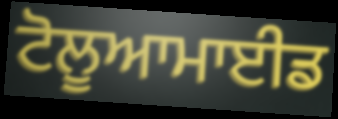
ਟੋਲੂਆਮਾਈਡ